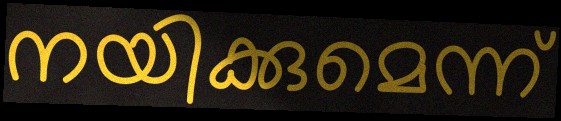
നയിക്കുമെന്ന്